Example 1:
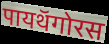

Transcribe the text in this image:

पायथॅगोरस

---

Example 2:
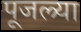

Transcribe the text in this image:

पूजल्या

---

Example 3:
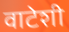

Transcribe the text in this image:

वाटेशी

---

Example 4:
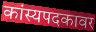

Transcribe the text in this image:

कांस्यपदकावर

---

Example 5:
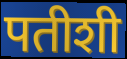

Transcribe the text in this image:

पतीशी